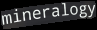
mineralogy